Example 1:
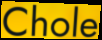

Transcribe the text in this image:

Chole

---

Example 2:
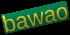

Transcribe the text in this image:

bawao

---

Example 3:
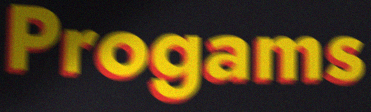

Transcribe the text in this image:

Progams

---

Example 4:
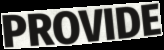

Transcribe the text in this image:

PROVIDE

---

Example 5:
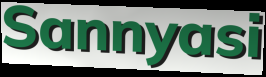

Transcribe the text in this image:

Sannyasi